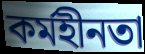
কৰ্মহীনতা